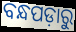
ବନ୍ଧପଡ଼ାରୁ